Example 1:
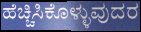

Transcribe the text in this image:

ಹೆಚ್ಚಿಸಿಕೊಳ್ಳುವುದರ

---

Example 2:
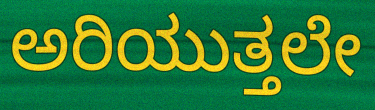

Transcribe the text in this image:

ಅರಿಯುತ್ತಲೇ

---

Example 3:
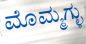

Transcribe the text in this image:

ಮೊಮ್ಮಗ್ಳು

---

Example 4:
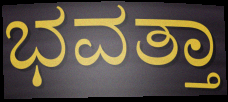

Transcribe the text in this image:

ಭವತ್ತಾ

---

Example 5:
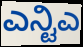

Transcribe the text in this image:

ಎನ್ಟಿಎ